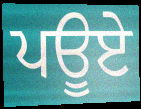
ਪਊਏ